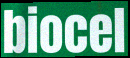
biocel